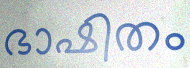
ഭാഷിതം